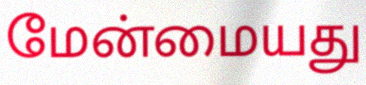
மேன்மையது